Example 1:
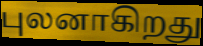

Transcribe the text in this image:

புலனாகிறது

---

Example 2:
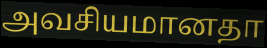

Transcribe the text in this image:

அவசியமானதா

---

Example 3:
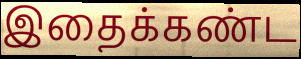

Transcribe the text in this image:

இதைக்கண்ட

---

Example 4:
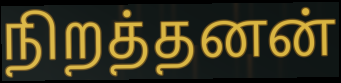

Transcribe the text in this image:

நிறத்தனன்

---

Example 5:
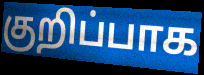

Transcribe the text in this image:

குறிப்பாக